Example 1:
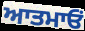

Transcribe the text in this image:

ਆਤਮਾਓਂ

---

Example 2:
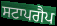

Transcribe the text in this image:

ਸਟਾਪਗੈਪ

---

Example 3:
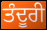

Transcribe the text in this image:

ਤੰਦੂਰੀ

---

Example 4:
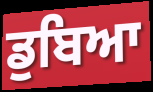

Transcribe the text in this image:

ਡੁਬਿਆ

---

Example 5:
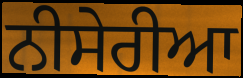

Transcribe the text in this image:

ਨੀਸੇਰੀਆ